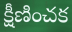
క్షీణించక